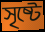
সৃষ্টে